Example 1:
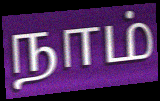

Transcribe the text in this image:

நாம்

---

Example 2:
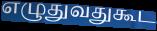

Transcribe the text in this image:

எழுதுவதுகூட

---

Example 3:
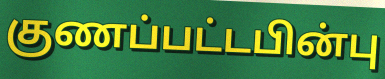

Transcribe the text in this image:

குணப்பட்டபின்பு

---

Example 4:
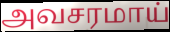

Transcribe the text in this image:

அவசரமாய்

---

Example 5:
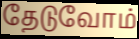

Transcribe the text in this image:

தேடுவோம்